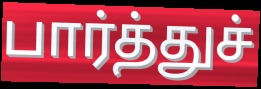
பார்த்துச்